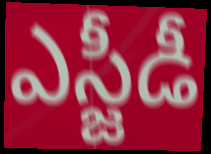
ఎస్జీడీ